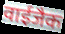
वाईजैक